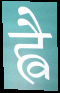
ह्वै